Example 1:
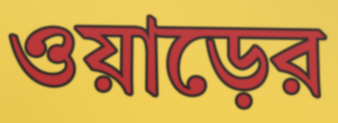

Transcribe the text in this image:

ওয়াড়ের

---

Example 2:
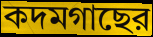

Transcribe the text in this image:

কদমগাছের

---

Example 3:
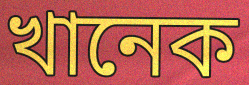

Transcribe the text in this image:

খানেক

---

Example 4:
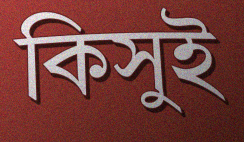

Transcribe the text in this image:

কিসুই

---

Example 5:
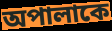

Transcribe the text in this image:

অপালাকে